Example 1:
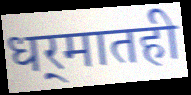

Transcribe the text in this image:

धर्मातही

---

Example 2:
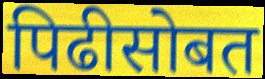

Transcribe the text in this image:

पिढीसोबत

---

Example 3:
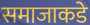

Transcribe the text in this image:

समाजाकडे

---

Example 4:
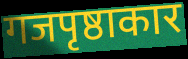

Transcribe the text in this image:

गजपृष्ठाकार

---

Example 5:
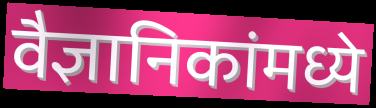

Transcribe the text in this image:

वैज्ञानिकांमध्ये